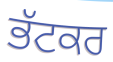
ਭੱਟਕਰ